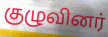
குழுவினர்